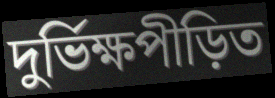
দুৰ্ভিক্ষপীড়িত